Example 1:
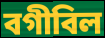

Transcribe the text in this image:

বগীবিল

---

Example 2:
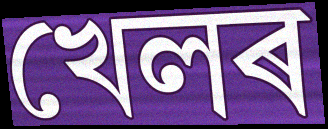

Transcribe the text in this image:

খেলৰ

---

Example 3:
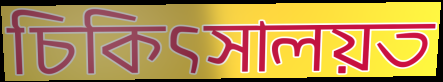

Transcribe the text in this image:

চিকিৎসালয়ত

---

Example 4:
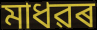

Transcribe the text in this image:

মাধৱৰ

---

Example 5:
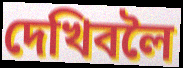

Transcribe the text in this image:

দেখিবলৈ